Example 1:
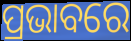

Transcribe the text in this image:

ପ୍ରଭାବରେ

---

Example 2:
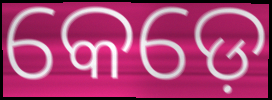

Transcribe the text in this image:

କେଡ଼େ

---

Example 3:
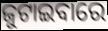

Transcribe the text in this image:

ଜୁଟାଇବାରେ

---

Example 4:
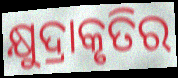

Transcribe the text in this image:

କ୍ଷୁଦ୍ରାକୃତିର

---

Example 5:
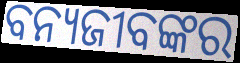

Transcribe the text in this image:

ବନ୍ୟଜୀବଙ୍କର